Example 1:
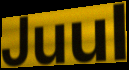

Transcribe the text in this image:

Juul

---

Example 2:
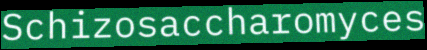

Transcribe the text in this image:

Schizosaccharomyces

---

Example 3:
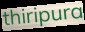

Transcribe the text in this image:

thiripura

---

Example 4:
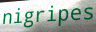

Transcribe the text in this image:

nigripes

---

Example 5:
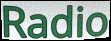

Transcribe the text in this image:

Radio